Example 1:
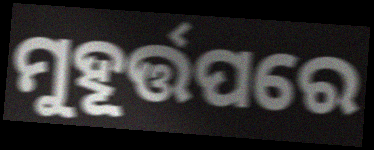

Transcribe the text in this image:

ମୁହୂର୍ତ୍ତପରେ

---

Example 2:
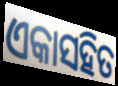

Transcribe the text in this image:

ଏକାସହିତ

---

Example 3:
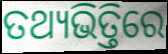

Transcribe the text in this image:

ତଥ୍ୟଭିତ୍ତିରେ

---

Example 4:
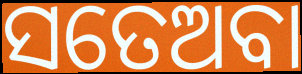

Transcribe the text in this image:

ସତେଅବା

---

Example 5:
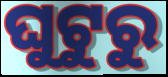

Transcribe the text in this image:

ଘୁଟୁରୁ